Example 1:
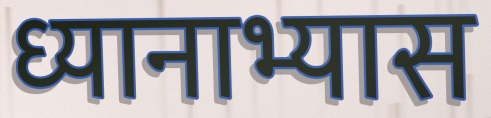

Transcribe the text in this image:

ध्यानाभ्यास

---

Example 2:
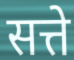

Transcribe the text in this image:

सत्ते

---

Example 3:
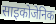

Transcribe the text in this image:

साइकोजेनिक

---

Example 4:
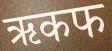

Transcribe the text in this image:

ऋकफ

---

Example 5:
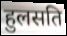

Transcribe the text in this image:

हुलसति